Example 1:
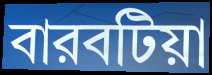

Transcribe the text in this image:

বারবটিয়া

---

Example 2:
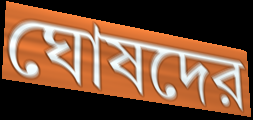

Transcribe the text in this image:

ঘোষদের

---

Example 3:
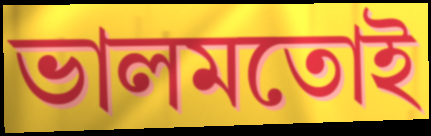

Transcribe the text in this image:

ভালমতোই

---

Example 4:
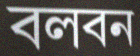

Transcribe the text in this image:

বলবন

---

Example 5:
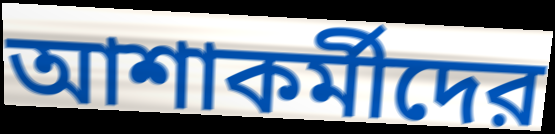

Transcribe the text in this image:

আশাকর্মীদের